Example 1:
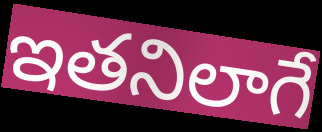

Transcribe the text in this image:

ఇతనిలాగే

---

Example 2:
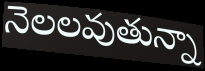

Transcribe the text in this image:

నెలలవుతున్నా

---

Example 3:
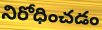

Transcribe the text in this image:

నిరోధించడం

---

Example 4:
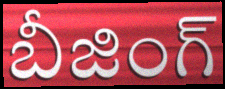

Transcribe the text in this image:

బీజింగ్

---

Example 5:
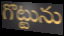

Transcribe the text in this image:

గొట్టును